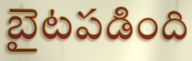
బైటపడింది